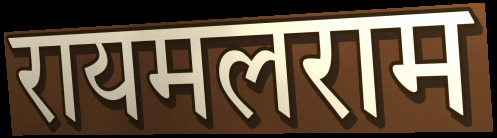
रायमलराम